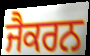
ਜੈਕਰਨ